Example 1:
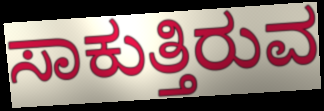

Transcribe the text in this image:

ಸಾಕುತ್ತಿರುವ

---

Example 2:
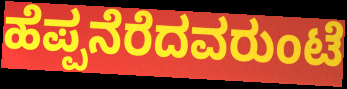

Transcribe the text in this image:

ಹೆಪ್ಪನೆರೆದವರುಂಟೆ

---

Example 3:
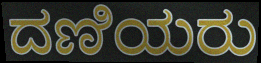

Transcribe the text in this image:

ದಣಿಯರು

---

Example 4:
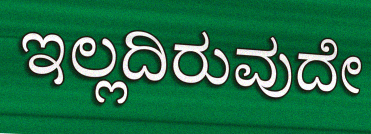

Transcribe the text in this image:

ಇಲ್ಲದಿರುವುದೇ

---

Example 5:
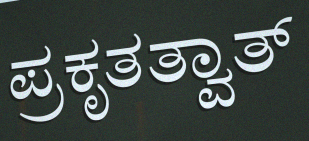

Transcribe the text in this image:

ಪ್ರಕೃತತ್ವಾತ್